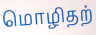
மொழிதற்